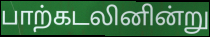
பாற்கடலினின்று